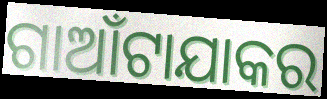
ଗାଆଁଟାଯାକର